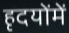
हृदयोंमें